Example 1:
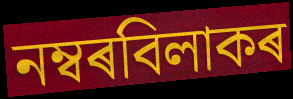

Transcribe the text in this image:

নম্বৰবিলাকৰ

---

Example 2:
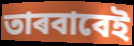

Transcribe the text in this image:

তাৰবাবেই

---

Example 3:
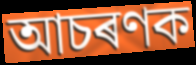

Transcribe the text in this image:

আচৰণক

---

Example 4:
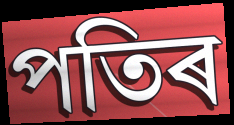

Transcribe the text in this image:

পতিৰ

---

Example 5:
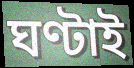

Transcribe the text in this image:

ঘণ্টাই